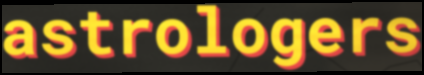
astrologers